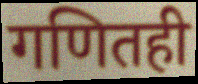
गणितही